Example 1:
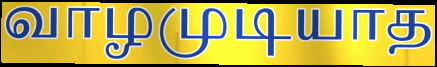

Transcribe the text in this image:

வாழமுடியாத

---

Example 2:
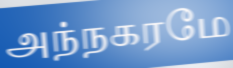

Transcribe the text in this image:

அந்நகரமே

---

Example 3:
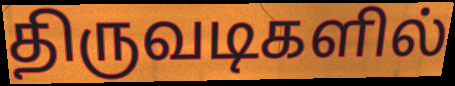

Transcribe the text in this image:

திருவடிகளில்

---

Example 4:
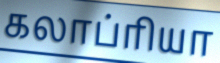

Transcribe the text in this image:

கலாப்ரியா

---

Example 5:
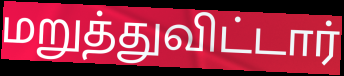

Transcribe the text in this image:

மறுத்துவிட்டார்